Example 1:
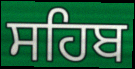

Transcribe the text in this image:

ਸਹਿਬ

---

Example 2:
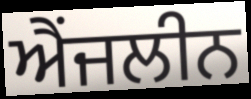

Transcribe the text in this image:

ਐਂਜਲੀਨ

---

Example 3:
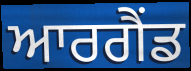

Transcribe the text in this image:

ਆਰਗੈਂਡ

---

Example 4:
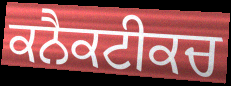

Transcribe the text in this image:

ਕਨੈਕਟੀਕਚ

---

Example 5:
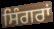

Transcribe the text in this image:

ਸਿੰਗਰਾਂ